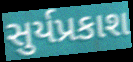
સુર્યપ્રકાશ